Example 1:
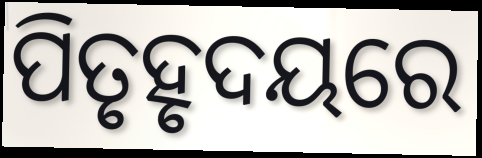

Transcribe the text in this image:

ପିତୃହୃଦୟରେ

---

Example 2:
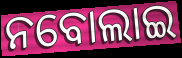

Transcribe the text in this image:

ନବୋଲାଇ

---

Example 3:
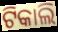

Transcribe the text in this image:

ଟିକାଲି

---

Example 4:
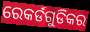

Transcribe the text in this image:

ରେକର୍ଡଗୁଡିକର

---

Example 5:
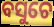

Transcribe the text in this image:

ବସୁଚେ